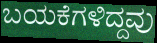
ಬಯಕೆಗಳಿದ್ದವು